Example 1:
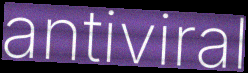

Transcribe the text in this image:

antiviral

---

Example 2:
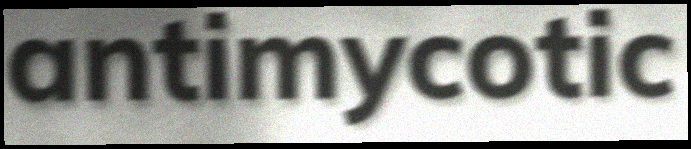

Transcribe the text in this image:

antimycotic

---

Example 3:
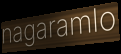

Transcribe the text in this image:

nagaramlo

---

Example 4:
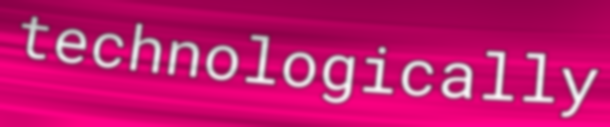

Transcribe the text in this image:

technologically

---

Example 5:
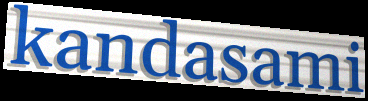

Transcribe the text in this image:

kandasami